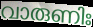
വാരുണിഃ